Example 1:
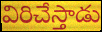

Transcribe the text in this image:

విరిచేస్తాడు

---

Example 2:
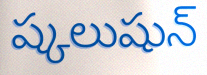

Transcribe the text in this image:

ష్కలుషున్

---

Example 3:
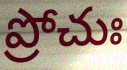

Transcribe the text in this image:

ప్రోచుః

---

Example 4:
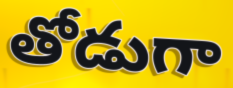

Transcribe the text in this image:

తోడుగా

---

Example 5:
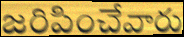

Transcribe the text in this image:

జరిపించేవారు